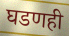
घडणही